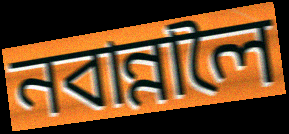
নবান্নালৈ